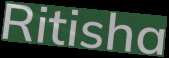
Ritisha